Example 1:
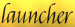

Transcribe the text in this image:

launcher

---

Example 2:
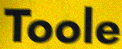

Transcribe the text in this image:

Toole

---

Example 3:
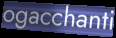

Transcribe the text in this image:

ogacchanti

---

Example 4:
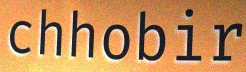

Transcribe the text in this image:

chhobir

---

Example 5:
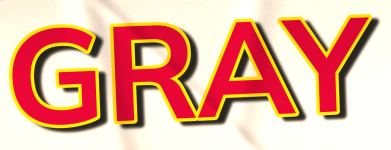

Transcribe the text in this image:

GRAY